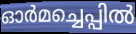
ഓർമച്ചെപ്പിൽ